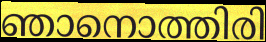
ഞാനൊത്തിരി